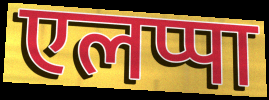
एलप्पा